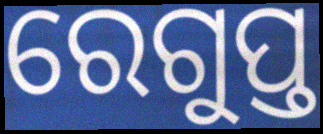
ରେଗୁପ୍ତ